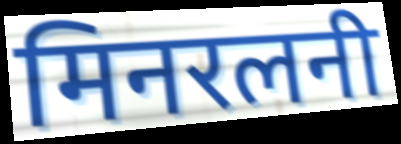
मिनरलनी